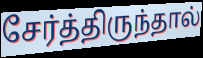
சேர்த்திருந்தால்